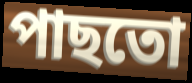
পাছতো